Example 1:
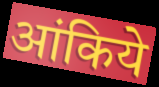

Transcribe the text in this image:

आंकिये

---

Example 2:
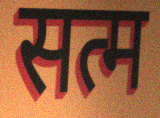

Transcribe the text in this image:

सत्म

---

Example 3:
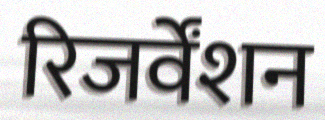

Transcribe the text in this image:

रिजर्वेंशन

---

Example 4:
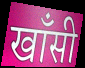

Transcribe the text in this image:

खाँसी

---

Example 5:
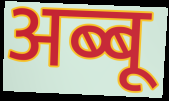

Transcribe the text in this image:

अब्बू